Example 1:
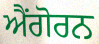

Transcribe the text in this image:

ਐਂਗੋਰਨ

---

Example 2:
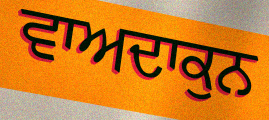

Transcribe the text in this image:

ਵਾਅਦਾਕੁਨ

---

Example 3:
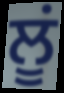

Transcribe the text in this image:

ਲੂਂ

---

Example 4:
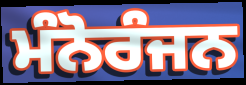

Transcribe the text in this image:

ਮੰਨੋਰੰਜਨ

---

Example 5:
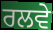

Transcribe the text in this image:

ਰਲਵੇ